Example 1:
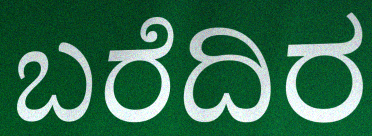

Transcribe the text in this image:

ಬರೆದಿರ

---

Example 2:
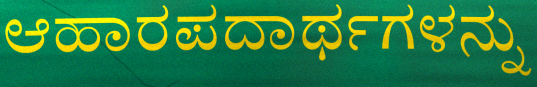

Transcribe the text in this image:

ಆಹಾರಪದಾರ್ಥಗಳನ್ನು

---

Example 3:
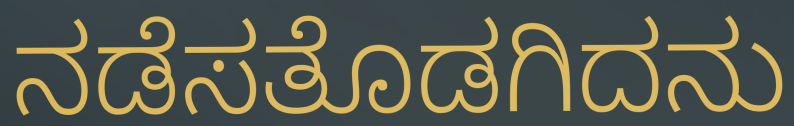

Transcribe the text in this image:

ನಡೆಸತೊಡಗಿದನು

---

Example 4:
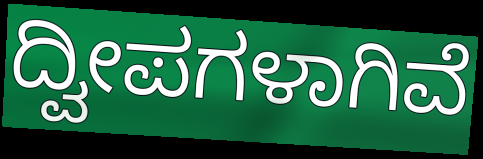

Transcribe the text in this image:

ದ್ವೀಪಗಳಾಗಿವೆ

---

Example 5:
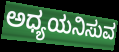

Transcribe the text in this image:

ಅಧ್ಯಯನಿಸುವ